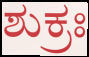
ಶುಕ್ರಃ